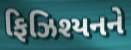
ફિઝિશ્યનને